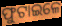
ଫୁଟାଇଳେ